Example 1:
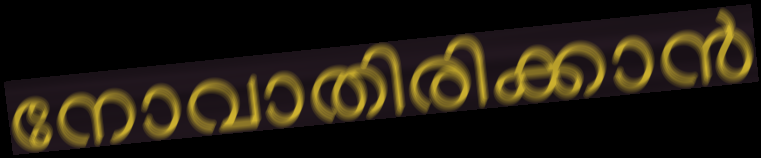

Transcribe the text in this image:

നോവാതിരിക്കാൻ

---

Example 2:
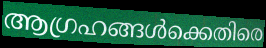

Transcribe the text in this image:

ആഗ്രഹങ്ങൾക്കെതിരെ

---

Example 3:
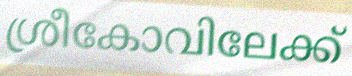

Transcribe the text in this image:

ശ്രീകോവിലേക്ക്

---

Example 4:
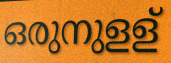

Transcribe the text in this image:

ഒരുനുളള്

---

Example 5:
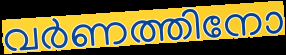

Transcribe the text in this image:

വർണത്തിനോ